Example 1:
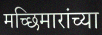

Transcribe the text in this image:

मच्छिमारांच्या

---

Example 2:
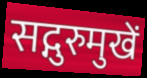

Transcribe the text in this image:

सद्गुरुमुखें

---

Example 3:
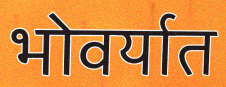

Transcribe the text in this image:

भोवर्यात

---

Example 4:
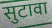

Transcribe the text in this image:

सुटावा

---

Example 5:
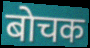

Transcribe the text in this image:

बोचक